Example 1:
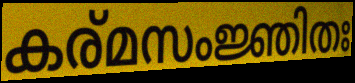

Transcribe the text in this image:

കര്മസംജ്ഞിതഃ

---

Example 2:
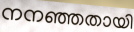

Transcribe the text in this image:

നനഞ്ഞതായി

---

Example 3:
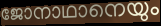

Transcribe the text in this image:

ജോനാഥാനെയും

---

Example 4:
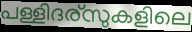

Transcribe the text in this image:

പള്ളിദര്സുകളിലെ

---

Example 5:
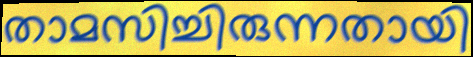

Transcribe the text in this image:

താമസിച്ചിരുന്നതായി